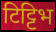
टिट्टिभ